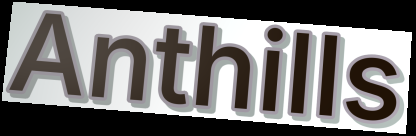
Anthills